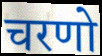
चरणो